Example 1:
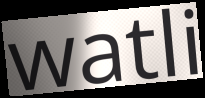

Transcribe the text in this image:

watli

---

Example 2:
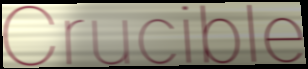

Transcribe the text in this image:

Crucible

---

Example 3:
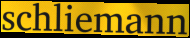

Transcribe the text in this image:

schliemann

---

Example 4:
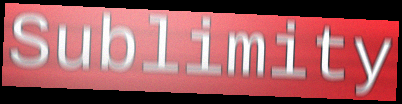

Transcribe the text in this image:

Sublimity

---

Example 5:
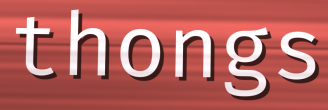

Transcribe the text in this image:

thongs